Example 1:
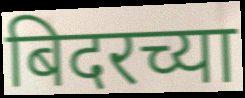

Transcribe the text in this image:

बिदरच्या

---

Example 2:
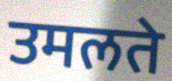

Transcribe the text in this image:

उमलते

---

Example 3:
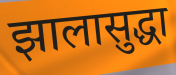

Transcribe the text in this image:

झालासुद्धा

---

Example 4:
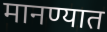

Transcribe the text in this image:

मानण्यात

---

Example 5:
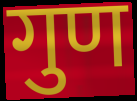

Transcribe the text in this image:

गुण